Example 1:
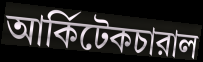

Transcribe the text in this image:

আর্কিটেকচারাল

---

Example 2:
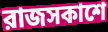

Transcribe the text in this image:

রাজসকাশে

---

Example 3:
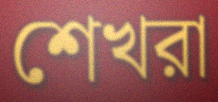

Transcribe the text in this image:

শেখরা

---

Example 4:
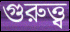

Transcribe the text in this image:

গুরুত্ত্ব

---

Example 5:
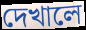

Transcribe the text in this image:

দেখালে